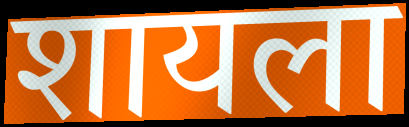
शायला